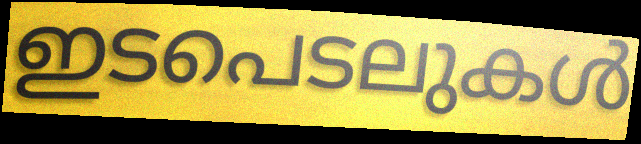
ഇടപെടലുകൾ